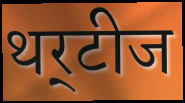
थर्टीज